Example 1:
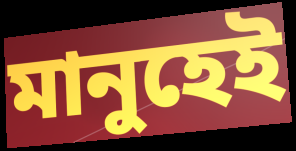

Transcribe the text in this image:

মানুহেই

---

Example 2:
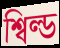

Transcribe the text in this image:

শ্বিল্ড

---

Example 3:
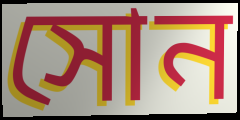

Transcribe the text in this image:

সোন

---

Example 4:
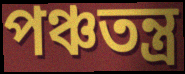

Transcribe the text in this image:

পঞ্চতন্ত্ৰ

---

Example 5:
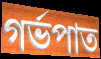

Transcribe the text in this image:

গৰ্ভপাত